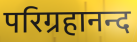
परिग्रहानन्द